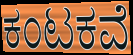
ಕಂಟಕವೆ